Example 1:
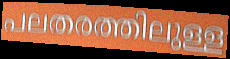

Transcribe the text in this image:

പലതരത്തിലുള്ള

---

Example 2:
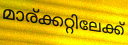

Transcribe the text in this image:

മാര്ക്കറ്റിലേക്ക്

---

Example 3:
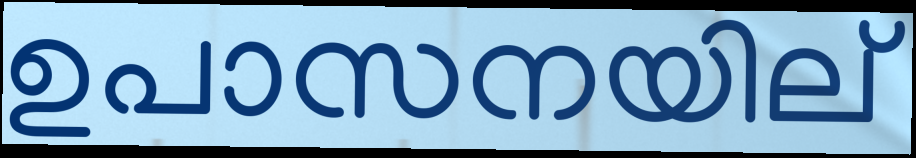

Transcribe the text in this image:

ഉപാസനയില്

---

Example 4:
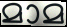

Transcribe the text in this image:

മാമ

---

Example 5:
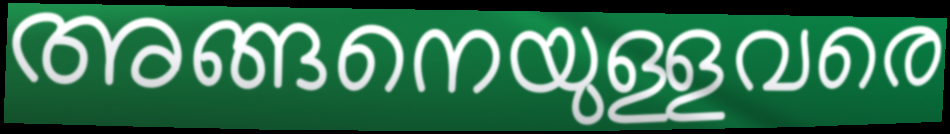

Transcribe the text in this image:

അങ്ങനെയുള്ളവരെ